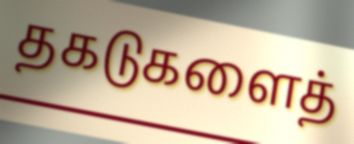
தகடுகளைத்